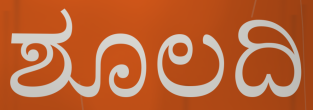
ಶೂಲದಿ